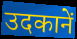
उदकानें